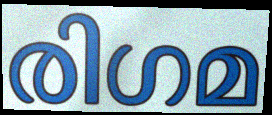
രിഗമ